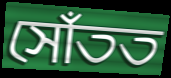
সোঁতত